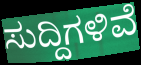
ಸುದ್ದಿಗಳಿವೆ